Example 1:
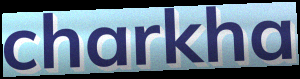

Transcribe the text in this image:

charkha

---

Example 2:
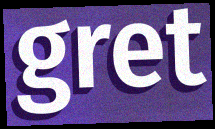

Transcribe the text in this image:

gret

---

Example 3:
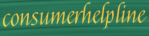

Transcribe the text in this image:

consumerhelpline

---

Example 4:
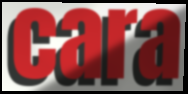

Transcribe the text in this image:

cara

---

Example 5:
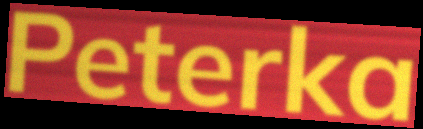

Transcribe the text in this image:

Peterka